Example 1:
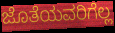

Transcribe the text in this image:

ಜೊತೆಯವರಿಗೆಲ್ಲ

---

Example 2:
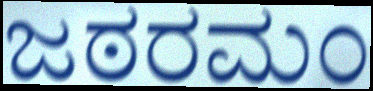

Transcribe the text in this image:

ಜಠರಮಂ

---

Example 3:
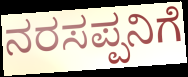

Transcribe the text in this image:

ನರಸಪ್ಪನಿಗೆ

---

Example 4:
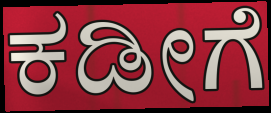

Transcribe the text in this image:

ಕಡೀಗೆ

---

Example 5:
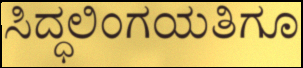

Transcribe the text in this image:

ಸಿದ್ಧಲಿಂಗಯತಿಗೂ